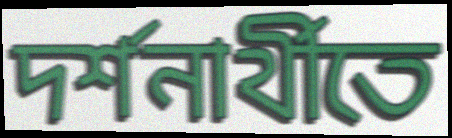
দর্শনার্থীতে